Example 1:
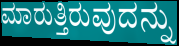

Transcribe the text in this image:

ಮಾರುತ್ತಿರುವುದನ್ನು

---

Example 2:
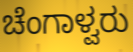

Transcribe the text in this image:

ಚೆಂಗಾಳ್ವರು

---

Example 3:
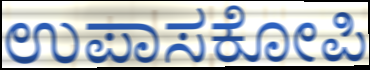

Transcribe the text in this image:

ಉಪಾಸಕೋಪಿ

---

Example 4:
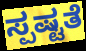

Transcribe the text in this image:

ಸ್ಪಷ್ಟತೆ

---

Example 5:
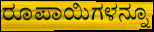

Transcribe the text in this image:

ರೂಪಾಯಿಗಳನ್ನೂ